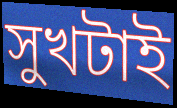
সুখটাই